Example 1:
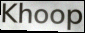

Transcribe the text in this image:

Khoop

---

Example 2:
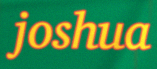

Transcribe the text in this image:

joshua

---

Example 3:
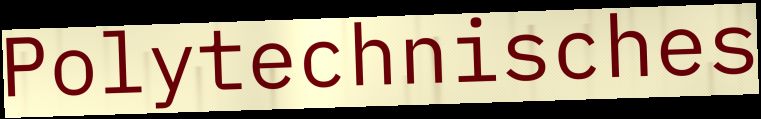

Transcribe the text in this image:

Polytechnisches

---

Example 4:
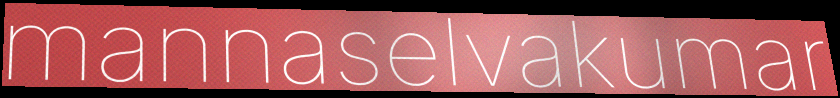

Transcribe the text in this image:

mannaselvakumar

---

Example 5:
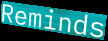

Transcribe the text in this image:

Reminds